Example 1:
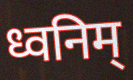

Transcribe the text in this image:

ध्वनिम्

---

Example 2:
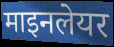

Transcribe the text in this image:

माइनलेयर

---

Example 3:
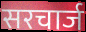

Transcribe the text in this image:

सरचार्ज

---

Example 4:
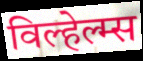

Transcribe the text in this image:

विल्हेल्म्स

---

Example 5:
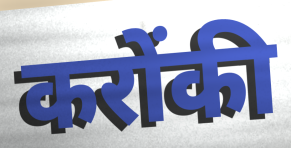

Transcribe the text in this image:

करोंकी